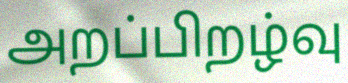
அறப்பிறழ்வு